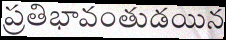
ప్రతిభావంతుడయిన